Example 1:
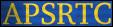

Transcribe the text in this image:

APSRTC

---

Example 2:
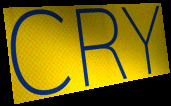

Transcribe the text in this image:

CRY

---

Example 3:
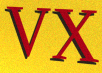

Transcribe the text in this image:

VX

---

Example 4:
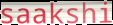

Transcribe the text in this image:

saakshi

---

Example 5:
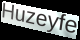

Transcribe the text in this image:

Huzeyfe